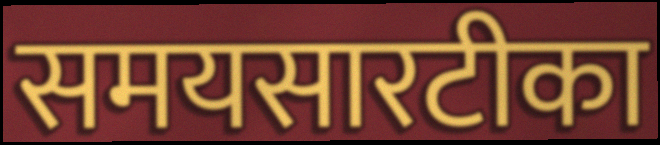
समयसारटीका